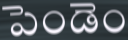
పెండెం